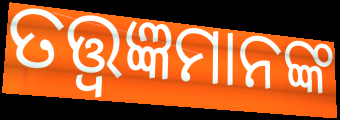
ତତ୍ତ୍ୱଜ୍ଞମାନଙ୍କ